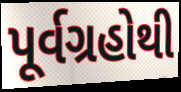
પૂર્વગ્રહોથી